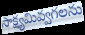
సాక్ష్యమివ్వగలను